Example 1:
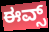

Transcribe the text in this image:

ಈವ್ಸ್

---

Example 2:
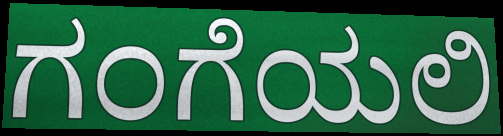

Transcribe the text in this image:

ಗಂಗೆಯಲಿ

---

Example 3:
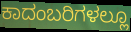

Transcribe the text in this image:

ಕಾದಂಬರಿಗಳಲ್ಲೂ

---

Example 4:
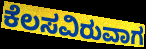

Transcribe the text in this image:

ಕೆಲಸವಿರುವಾಗ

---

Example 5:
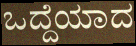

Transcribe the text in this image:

ಒದ್ದೆಯಾದ